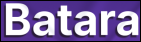
Batara